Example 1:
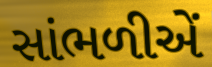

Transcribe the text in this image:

સાંભળીએં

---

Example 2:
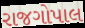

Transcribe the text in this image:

રાજગોપાલ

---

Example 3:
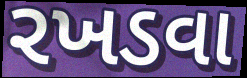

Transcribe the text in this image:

રખડવા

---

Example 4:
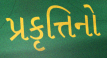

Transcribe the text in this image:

પ્રકૃત્તિનો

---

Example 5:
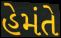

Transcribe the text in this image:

હેમંતે